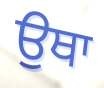
ਉਥਾ